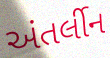
અંતર્લીન